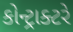
કોન્ટ્રાક્ટરે